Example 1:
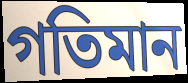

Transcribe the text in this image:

গতিমান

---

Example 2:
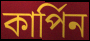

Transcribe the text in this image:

কার্পিন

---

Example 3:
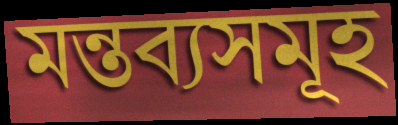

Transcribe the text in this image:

মন্তব্যসমূহ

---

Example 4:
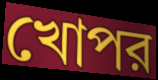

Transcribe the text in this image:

খোপর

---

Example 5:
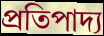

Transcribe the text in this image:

প্রতিপাদ্য